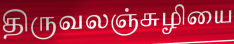
திருவலஞ்சுழியை